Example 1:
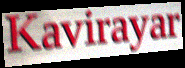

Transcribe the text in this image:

Kavirayar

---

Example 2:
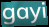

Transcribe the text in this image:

gayi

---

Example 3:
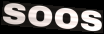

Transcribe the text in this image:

soos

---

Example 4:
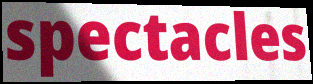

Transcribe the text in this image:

spectacles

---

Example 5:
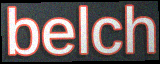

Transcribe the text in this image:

belch